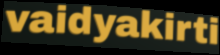
vaidyakirti